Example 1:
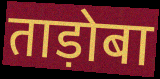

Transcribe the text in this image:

ताड़ोबा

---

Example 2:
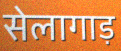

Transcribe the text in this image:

सेलागाड़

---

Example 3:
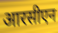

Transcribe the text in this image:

आरसीएन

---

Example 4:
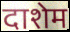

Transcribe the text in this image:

दाशेम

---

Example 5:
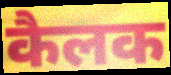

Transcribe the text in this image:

कैलक